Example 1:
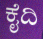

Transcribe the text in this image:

ಕೈದಿ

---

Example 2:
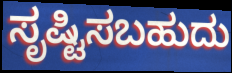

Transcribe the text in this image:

ಸೃಷ್ಟಿಸಬಹುದು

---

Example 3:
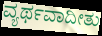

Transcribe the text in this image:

ವ್ಯರ್ಥವಾದೀತು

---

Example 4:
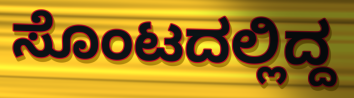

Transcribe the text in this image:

ಸೊಂಟದಲ್ಲಿದ್ದ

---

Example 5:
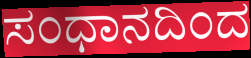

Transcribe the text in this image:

ಸಂಧಾನದಿಂದ